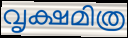
വൃക്ഷമിത്ര